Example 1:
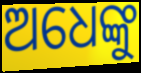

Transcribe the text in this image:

ଅଧେଙ୍କୁ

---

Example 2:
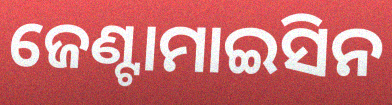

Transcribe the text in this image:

ଜେଣ୍ଟାମାଇସିନ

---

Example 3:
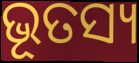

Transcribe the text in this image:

ଭୂତସ୍ୟ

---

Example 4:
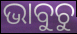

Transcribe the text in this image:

ଭାବୁଚୁ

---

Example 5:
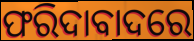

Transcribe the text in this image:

ଫରିଦାବାଦରେ